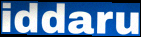
iddaru